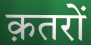
क़तरों